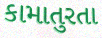
કામાતુરતા